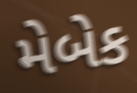
મેબેક